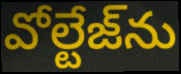
వోల్టేజ్‌ను